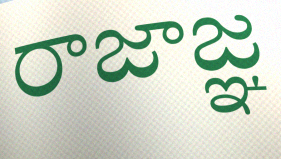
రాజాజ్ఞ